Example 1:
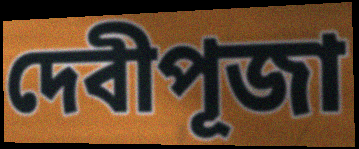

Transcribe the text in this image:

দেবীপূজা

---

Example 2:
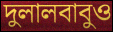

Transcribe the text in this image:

দুলালবাবুও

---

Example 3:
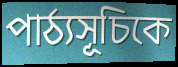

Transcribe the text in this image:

পাঠ্যসূচিকে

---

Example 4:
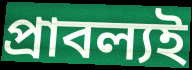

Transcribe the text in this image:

প্রাবল্যই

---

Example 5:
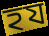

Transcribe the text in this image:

হয